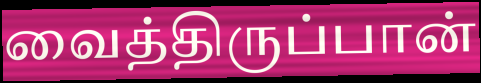
வைத்திருப்பான்